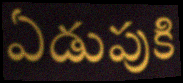
ఏడుపుకి